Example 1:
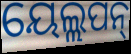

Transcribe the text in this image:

ୟେଲ୍ଲପନ୍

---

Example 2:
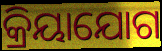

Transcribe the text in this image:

କ୍ରିୟାଯୋଗ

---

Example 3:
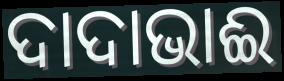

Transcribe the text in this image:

ଦାଦାଭାଈ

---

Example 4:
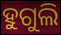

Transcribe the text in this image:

ହୁଗୁଲି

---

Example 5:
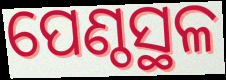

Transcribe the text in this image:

ପେଣ୍ଠସ୍ଥଳ